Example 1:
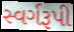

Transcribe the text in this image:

સ્વર્ગરૂપી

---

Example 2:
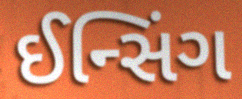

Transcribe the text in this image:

ઈન્સિંગ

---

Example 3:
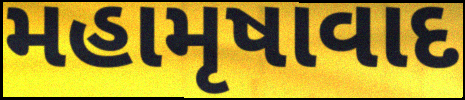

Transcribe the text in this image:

મહામૃષાવાદ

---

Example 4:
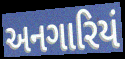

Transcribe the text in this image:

અનગારિયં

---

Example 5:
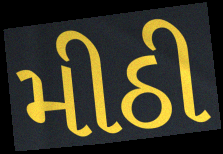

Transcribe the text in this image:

મીઠી